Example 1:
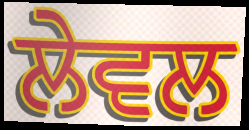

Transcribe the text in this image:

ਲੇਵਲ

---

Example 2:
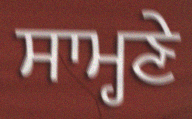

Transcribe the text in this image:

ਸਾਮ੍ਹਣੇ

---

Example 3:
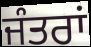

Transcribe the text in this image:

ਜੰਤਰਾਂ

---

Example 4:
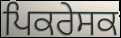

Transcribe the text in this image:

ਪਿਕਰੇਸਕ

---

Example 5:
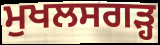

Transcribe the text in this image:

ਮੁਖਲਸਗੜ੍ਹ